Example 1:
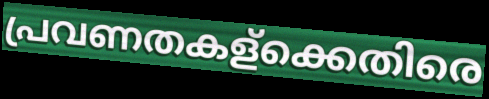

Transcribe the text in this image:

പ്രവണതകള്ക്കെതിരെ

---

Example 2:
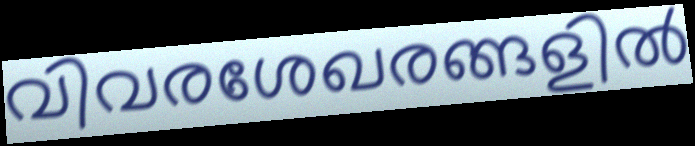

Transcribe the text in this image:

വിവരശേഖരങ്ങളിൽ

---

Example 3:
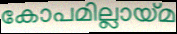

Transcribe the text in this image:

കോപമില്ലായ്മ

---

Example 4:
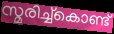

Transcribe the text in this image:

സ്മരിച്ച്കൊണ്ട്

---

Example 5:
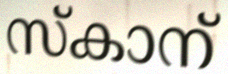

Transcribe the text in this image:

സ്കാന്